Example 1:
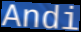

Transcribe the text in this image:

Andi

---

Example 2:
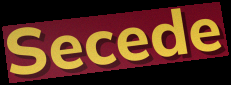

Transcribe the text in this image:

Secede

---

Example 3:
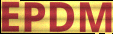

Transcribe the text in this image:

EPDM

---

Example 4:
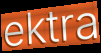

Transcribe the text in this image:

ektra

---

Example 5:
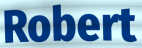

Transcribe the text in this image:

Robert